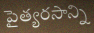
పైత్యరసాన్ని